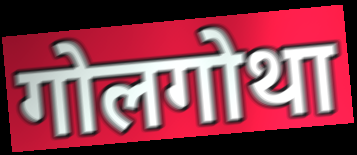
गोलगोथा